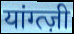
यांग्त्ज़ी